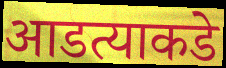
आडत्याकडे